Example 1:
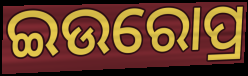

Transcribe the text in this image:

ଇଉରୋପ୍ର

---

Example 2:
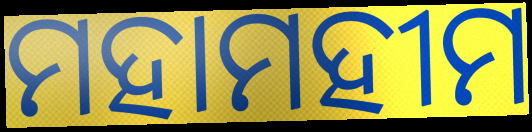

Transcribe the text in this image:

ମହାମହୀମ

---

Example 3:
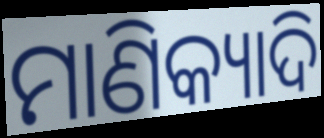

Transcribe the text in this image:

ମାଣିକ୍ୟାଦି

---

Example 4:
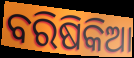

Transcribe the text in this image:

ବରିଷିକିଆ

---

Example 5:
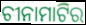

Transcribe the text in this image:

ଚୀନାମାଟିର